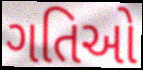
ગતિઓ